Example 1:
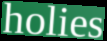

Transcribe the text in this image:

holies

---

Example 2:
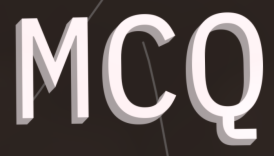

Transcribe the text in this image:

MCQ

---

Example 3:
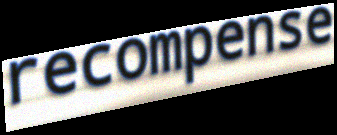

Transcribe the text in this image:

recompense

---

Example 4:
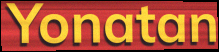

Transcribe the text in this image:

Yonatan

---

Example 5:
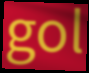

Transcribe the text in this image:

gol